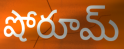
షోరూమ్